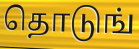
தொடுங்